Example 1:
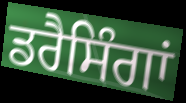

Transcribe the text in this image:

ਡਰੈਸਿੰਗਾਂ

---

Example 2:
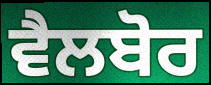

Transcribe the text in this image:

ਵੈਲਬੋਰ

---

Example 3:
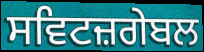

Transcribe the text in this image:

ਸਵਿਟਜ਼ਗੇਬਲ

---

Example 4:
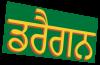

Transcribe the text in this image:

ਡਰੈਗਨ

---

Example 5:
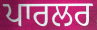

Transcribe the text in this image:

ਪਾਰਲਰ